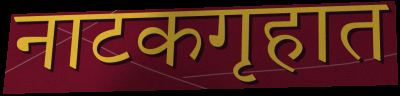
नाटकगृहात